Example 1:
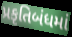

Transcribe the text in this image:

પ્રકૃતિબંધમાં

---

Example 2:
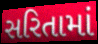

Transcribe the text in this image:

સરિતામાં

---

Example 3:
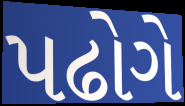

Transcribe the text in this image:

પઢોગે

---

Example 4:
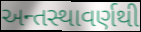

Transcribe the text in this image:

અન્તસ્થાવર્ણથી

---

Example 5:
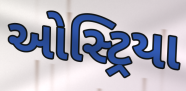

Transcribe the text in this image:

ઓસ્ટ્રિયા